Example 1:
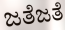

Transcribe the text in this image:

ಜತೆಜತೆ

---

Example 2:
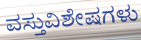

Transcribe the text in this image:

ವಸ್ತುವಿಶೇಷಗಳು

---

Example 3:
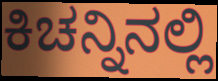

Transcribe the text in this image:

ಕಿಚನ್ನಿನಲ್ಲಿ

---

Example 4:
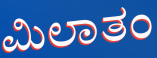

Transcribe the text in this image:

ಮಿಲಾತಂ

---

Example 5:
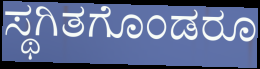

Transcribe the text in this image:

ಸ್ಥಗಿತಗೊಂಡರೂ